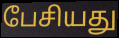
பேசியது